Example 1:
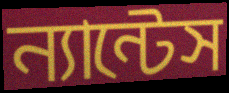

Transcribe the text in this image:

ন্যান্টেস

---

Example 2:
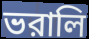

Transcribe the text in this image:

ভরালি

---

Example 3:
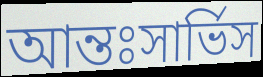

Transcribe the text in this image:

আন্তঃসার্ভিস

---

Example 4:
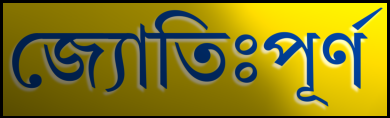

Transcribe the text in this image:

জ্যোতিঃপূর্ণ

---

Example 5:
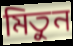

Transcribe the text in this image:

মিতুন